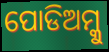
ପୋଡିଅମ୍କୁ